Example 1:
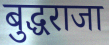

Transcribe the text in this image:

बुद्धराजा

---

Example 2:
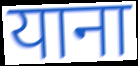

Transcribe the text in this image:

याना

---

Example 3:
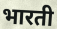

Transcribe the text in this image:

भारती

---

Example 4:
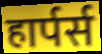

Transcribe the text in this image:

हार्पर्स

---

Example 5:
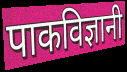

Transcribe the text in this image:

पाकविज्ञानी